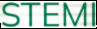
STEMI